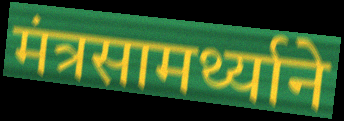
मंत्रसामर्थ्याने